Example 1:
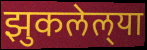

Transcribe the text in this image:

झुकलेल्या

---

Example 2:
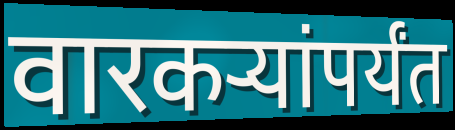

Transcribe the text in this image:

वारकऱ्यांपर्यंत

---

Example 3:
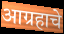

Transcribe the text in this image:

आग्रहाचे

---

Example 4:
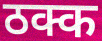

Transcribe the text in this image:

ठक्क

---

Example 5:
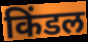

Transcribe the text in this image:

किंडल